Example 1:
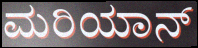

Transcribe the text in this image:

ಮರಿಯಾನ್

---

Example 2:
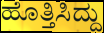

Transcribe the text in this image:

ಹೊತ್ತಿಸಿದ್ದು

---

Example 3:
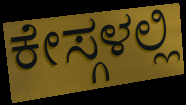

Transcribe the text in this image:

ಕೇಸ್ಗಳಲ್ಲಿ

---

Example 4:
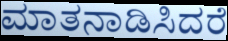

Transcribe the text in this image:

ಮಾತನಾಡಿಸಿದರೆ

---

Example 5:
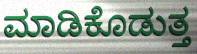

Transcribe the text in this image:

ಮಾಡಿಕೊಡುತ್ತ